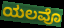
ಯಲವೊ